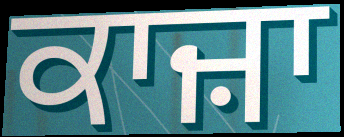
ਕਾਜ਼ਾ